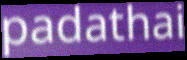
padathai